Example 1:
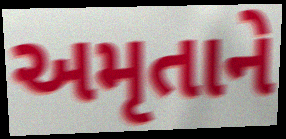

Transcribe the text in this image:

અમૃતાને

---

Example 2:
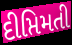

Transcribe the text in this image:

દીપ્તિમતી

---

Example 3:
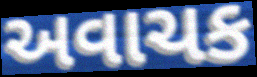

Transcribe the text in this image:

અવાચક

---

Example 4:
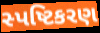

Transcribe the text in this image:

સ્પષ્ટિકરણ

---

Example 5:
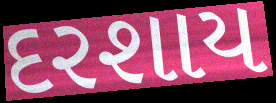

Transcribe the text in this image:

દરશાય